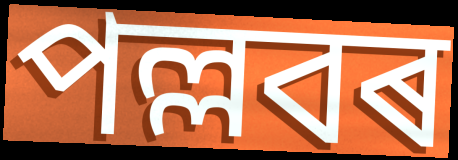
পল্লবৰ